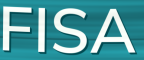
FISA